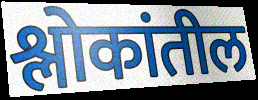
श्लोकांतील